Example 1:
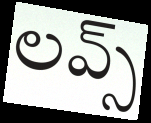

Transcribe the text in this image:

లవ్స్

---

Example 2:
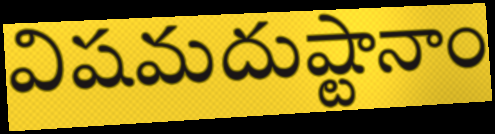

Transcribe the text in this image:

విషమదుష్టానాం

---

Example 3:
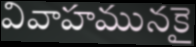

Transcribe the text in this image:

వివాహమునకై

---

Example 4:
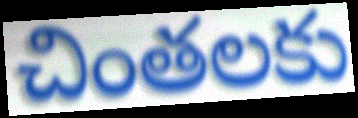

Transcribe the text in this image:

చింతలకు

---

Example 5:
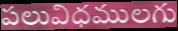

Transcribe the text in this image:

పలువిధములగు